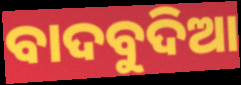
ବାଦବୁଦିଆ